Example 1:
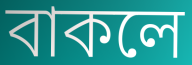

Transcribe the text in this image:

বাকলে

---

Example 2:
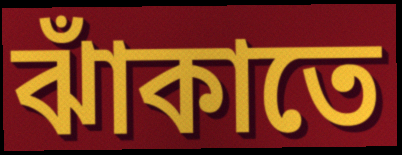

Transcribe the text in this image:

ঝাঁকাতে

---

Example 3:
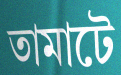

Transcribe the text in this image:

তামাটে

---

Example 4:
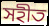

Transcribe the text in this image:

সহীত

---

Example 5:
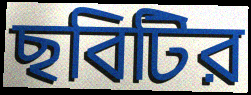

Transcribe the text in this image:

ছবিটির